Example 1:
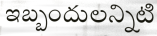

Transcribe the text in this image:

ఇబ్బందులన్నిటి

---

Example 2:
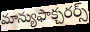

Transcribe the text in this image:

మాన్యుఫాక్చరర్స్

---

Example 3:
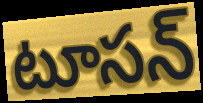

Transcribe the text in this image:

టూసన్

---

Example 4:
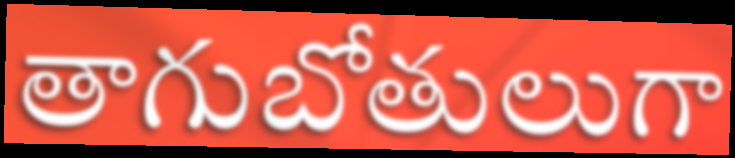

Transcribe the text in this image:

తాగుబోతులుగా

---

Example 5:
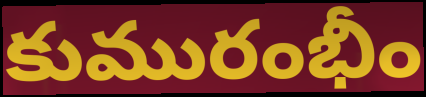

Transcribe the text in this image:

కుమురంభీం